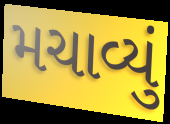
મચાવ્યું